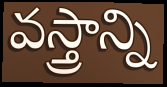
వస్త్రాన్ని